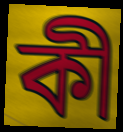
কী